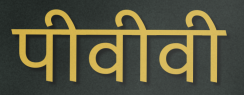
पीवीवी